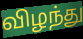
விழந்து